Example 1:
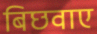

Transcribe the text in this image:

बिछवाए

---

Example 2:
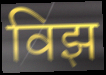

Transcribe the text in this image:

विझ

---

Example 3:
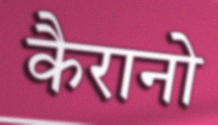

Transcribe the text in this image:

कैरानो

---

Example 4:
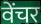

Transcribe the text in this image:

वेंचर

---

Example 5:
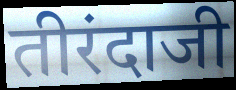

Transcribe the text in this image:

तीरंदाजी